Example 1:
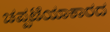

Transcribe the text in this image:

ಚಪ್ಪಟೆಯಾಕಾರದ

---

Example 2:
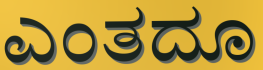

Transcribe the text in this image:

ಎಂತದೂ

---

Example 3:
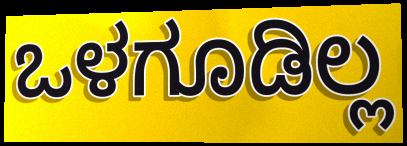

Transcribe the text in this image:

ಒಳಗೂಡಿಲ್ಲ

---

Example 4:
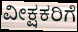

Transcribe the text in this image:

ವೀಕ್ಷಕರಿಗೆ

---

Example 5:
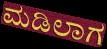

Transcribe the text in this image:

ಮಡಿಲಾಗ